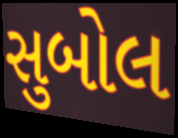
સુબોલ